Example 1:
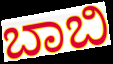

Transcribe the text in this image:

ಬಾಬಿ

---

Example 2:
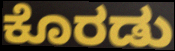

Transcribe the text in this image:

ಕೊರಡು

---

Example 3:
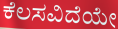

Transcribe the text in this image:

ಕೆಲಸವಿದೆಯೇ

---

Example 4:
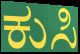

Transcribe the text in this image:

ಕುಸಿ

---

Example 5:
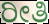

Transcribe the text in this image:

ರೀತಿ